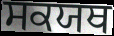
ਸਕਯਥ